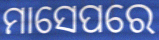
ମାସେପରେ